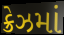
ક્રેઝમાં